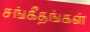
சங்கீதங்கள்